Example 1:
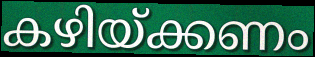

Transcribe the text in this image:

കഴിയ്ക്കണം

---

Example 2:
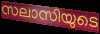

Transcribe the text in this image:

സലാസിയുടെ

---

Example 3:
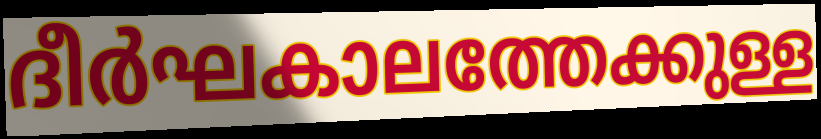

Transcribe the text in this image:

ദീർഘകാലത്തേക്കുള്ള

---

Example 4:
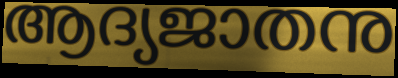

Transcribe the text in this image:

ആദ്യജാതനു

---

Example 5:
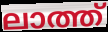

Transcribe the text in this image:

ലാത്ത്